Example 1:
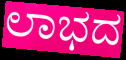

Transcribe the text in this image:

ಲಾಭದ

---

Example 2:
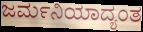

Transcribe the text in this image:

ಜರ್ಮನಿಯಾದ್ಯಂತ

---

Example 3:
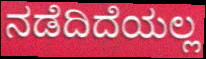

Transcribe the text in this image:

ನಡೆದಿದೆಯಲ್ಲ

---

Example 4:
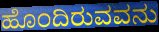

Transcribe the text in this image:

ಹೊಂದಿರುವವನು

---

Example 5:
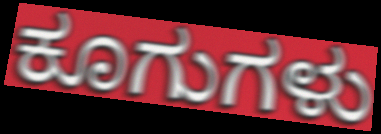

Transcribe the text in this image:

ಕೂಗುಗಳು